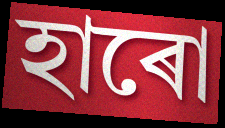
হাৰো